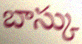
బాస్కు